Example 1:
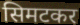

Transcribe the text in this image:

सिमटकर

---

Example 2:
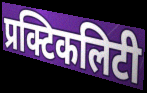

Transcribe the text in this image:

प्रक्टिकलिटी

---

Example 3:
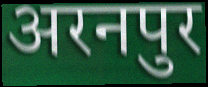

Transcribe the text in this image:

अरनपुर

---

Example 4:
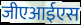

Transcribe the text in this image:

जीएआईएस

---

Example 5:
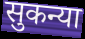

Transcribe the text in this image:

सुकन्या